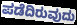
ಪಡೆದಿರುವುದು